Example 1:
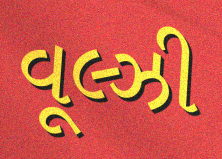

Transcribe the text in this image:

વૂલ્ઝી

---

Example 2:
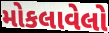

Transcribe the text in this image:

મોકલાવેલો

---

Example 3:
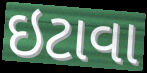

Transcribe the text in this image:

ઇટાવા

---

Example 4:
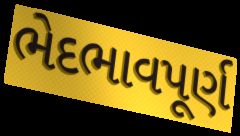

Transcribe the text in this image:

ભેદભાવપૂર્ણ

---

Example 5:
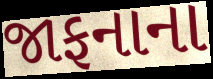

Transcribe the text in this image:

જાફનાના